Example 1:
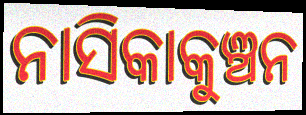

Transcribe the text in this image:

ନାସିକାକୁଞ୍ଚନ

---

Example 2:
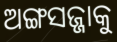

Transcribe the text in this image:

ଅଙ୍ଗସଜ୍ଜାକୁ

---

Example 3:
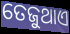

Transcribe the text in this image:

ତେଜୁଥାଏ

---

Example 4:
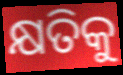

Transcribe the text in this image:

କ୍ଷତିକୁ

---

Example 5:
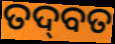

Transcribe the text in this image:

ତଦ୍‍ବତ